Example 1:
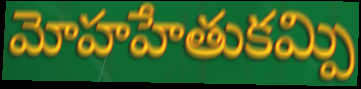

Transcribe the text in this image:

మోహహేతుకమ్పి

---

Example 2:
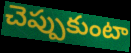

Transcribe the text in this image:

చెప్పుకుంటా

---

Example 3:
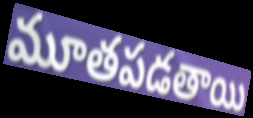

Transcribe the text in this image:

మూతపడతాయి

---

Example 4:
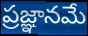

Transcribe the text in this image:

ప్రజ్ఞానమే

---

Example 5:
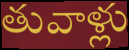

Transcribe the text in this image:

తువాళ్లు